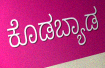
ಕೊಡಬ್ಯಾಡ